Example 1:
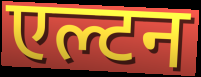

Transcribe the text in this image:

एल्टन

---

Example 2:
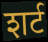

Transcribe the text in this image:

शर्ट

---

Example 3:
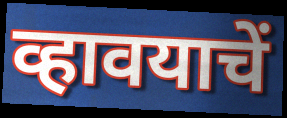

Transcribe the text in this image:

व्हावयाचें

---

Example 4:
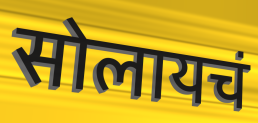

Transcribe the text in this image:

सोलायचं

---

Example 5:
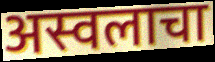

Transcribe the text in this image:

अस्वलाचा